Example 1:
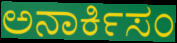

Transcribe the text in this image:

ಅನಾರ್ಕಿಸಂ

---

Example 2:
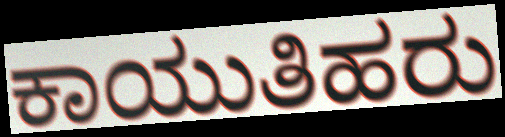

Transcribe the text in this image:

ಕಾಯುತಿಹರು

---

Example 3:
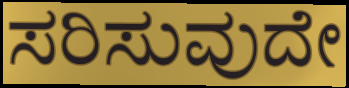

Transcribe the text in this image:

ಸರಿಸುವುದೇ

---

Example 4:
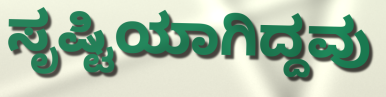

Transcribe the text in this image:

ಸೃಷ್ಟಿಯಾಗಿದ್ದವು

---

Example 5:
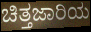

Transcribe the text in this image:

ಚಿತ್ತಜಾರಿಯ